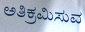
ಅತಿಕ್ರಮಿಸುವ